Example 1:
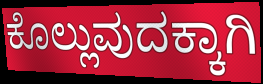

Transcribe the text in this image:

ಕೊಲ್ಲುವುದಕ್ಕಾಗಿ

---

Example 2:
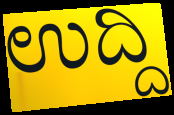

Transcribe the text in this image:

ಉದ್ದಿ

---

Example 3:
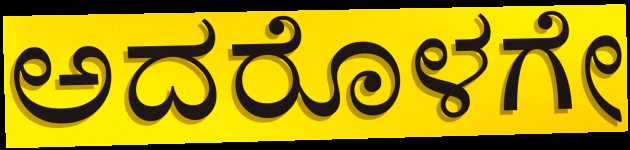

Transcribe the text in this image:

ಅದರೊಳಗೇ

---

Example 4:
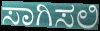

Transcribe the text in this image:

ಸಾಗಿಸಲಿ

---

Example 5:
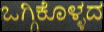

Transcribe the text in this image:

ಒಗ್ಗಿಕೊಳ್ಳದ